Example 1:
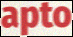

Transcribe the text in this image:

apto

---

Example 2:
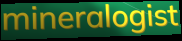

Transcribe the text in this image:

mineralogist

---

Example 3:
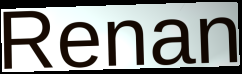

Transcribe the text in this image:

Renan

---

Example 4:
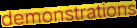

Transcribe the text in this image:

demonstrations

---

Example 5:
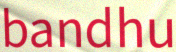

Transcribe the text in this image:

bandhu